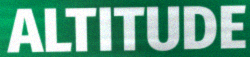
ALTITUDE